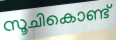
സൂചികൊണ്ട്